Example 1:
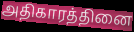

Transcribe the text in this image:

அதிகாரத்தினை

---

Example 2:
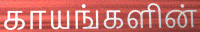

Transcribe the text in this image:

காயங்களின்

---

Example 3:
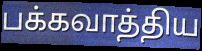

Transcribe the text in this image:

பக்கவாத்திய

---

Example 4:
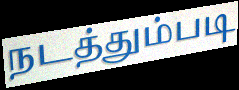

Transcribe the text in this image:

நடத்தும்படி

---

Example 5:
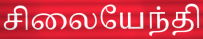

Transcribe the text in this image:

சிலையேந்தி